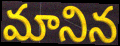
మానిన